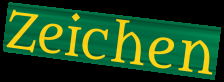
Zeichen